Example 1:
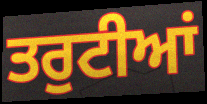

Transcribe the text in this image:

ਤਰੁਟੀਆਂ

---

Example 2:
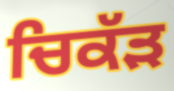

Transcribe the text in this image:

ਚਿਕੱੜ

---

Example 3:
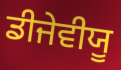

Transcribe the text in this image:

ਡੀਜੇਵੀਯੂ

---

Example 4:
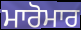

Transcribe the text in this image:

ਮਾਰੋਮਾਰ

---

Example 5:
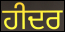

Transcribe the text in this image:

ਹੀਦਰ